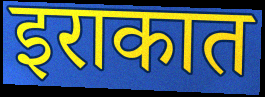
इराकात